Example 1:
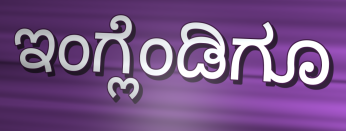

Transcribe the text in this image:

ಇಂಗ್ಲೆಂಡಿಗೂ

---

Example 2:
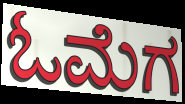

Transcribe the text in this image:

ಓಮೆಗ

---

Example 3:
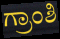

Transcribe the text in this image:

ಗ್ರಾಂಶಿ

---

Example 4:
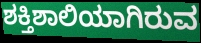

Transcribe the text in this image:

ಶಕ್ತಿಶಾಲಿಯಾಗಿರುವ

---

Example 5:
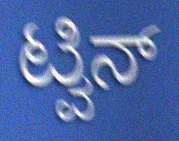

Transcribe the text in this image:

ಟ್ವಿನ್